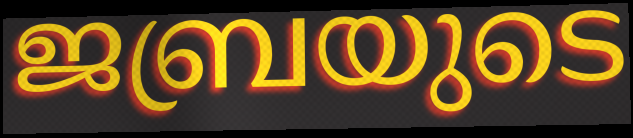
ജബ്രയുടെ